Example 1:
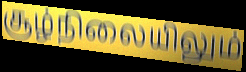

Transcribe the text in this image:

சூழ்நிலையிலும்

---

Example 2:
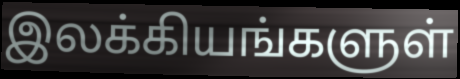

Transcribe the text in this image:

இலக்கியங்களுள்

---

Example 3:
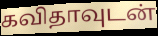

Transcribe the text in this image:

கவிதாவுடன்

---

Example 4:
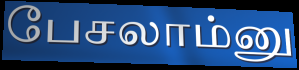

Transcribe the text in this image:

பேசலாம்னு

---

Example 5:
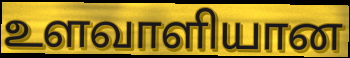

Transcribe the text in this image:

உளவாளியான